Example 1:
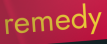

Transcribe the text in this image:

remedy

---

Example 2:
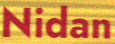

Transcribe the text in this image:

Nidan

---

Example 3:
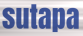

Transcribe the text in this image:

sutapa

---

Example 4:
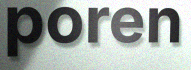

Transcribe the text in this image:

poren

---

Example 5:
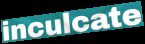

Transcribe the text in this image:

inculcate